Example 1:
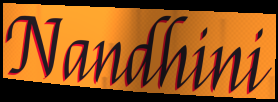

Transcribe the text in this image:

Nandhini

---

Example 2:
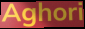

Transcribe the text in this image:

Aghori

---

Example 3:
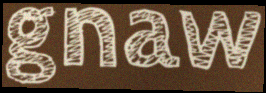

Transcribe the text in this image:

gnaw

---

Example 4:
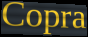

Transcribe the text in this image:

Copra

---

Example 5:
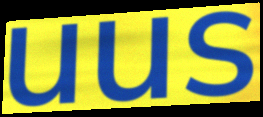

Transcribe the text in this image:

uus